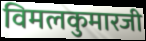
विमलकुमारजी